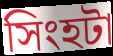
সিংহটা